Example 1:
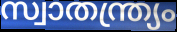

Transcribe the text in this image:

സ്വാതന്ത്ര്യം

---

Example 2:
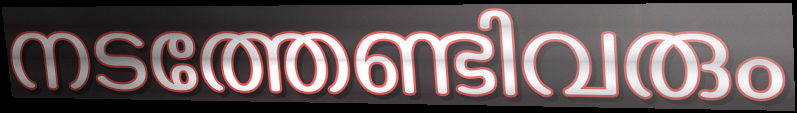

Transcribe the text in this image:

നടത്തേണ്ടിവരും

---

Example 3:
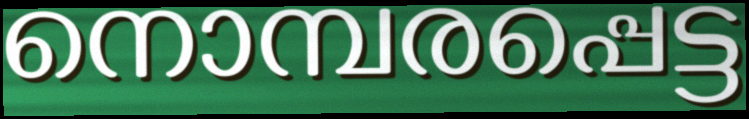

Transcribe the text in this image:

നൊമ്പരപ്പെട്ട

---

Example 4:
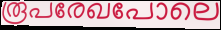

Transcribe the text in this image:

രൂപരേഖപോലെ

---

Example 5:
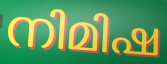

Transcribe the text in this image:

നിമിഷ